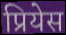
प्रियेस